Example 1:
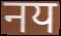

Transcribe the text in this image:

नय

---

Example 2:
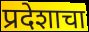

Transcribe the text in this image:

प्रदेशाचा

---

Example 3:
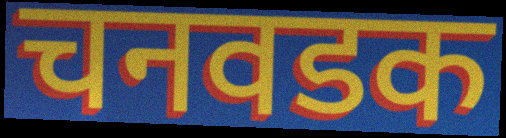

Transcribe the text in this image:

चनवडक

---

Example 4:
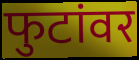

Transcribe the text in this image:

फुटांवर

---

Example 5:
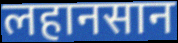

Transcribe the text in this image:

लहानसान